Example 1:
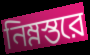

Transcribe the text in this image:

নিম্নস্তরে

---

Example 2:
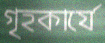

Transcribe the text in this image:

গৃহকার্যে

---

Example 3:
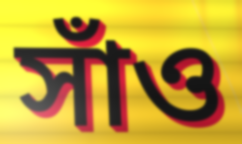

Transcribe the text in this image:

সাঁও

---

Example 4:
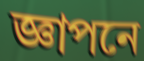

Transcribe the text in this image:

জ্ঞাপনে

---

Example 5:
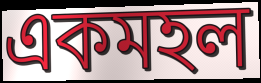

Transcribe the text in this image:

একমহল